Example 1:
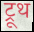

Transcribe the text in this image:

ट्रूथ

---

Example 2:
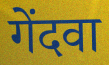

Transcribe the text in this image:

गेंदवा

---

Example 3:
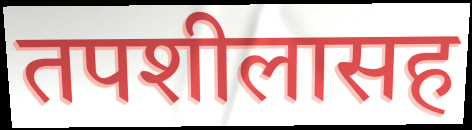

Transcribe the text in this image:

तपशीलासह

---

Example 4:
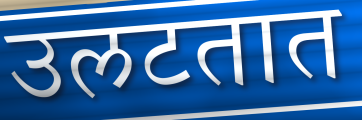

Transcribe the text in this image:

उलटतात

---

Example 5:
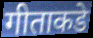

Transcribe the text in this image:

गीताकडे